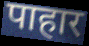
पाहार